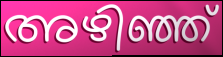
അഴിഞ്ഞ്